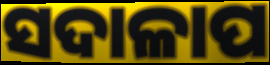
ସଦାଳାପ